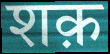
शक़